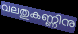
വലതുകണ്ണിനു